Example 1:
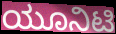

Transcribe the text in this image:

ಯೂನಿಟಿ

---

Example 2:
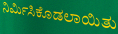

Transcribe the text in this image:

ನಿರ್ಮಿಸಿಕೊಡಲಾಯಿತು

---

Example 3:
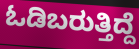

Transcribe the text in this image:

ಓಡಿಬರುತ್ತಿದ್ದೆ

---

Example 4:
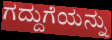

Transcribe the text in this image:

ಗದ್ದುಗೆಯನ್ನು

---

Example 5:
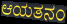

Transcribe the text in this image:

ಆಯತನಂ